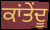
ਕਾਂਤੇਂਦੂ